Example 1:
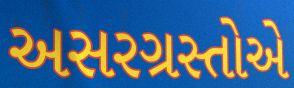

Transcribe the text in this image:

અસરગ્રસ્તોએ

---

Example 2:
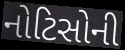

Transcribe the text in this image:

નોટિસોની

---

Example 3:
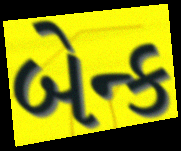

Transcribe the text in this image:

બેન્ક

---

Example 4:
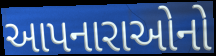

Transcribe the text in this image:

આપનારાઓનો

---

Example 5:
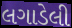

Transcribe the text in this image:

લગાડેલી